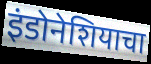
इंडोनेशियाचा